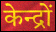
केन्द्रों